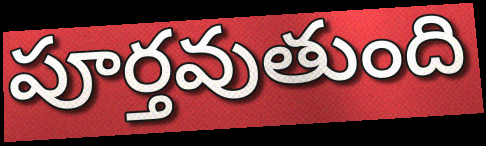
పూర్తవుతుంది